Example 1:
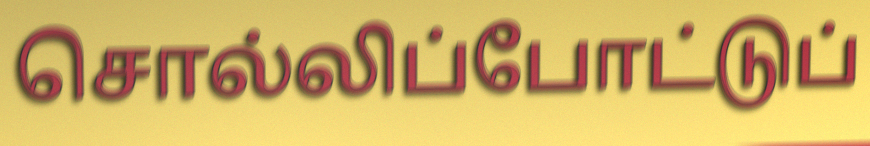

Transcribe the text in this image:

சொல்லிப்போட்டுப்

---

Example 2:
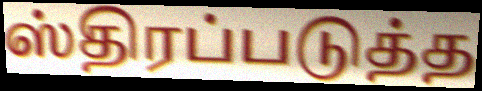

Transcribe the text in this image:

ஸ்திரப்படுத்த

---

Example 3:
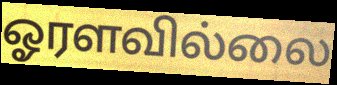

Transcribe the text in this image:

ஓரளவில்லை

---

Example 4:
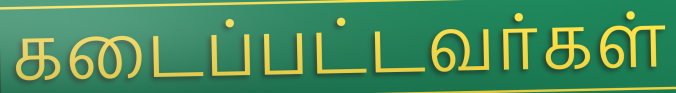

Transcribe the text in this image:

கடைப்பட்டவர்கள்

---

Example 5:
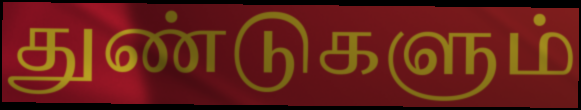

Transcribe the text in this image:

துண்டுகளும்